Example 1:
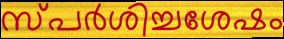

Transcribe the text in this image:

സ്പർശിച്ചശേഷം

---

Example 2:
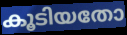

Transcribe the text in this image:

കൂടിയതോ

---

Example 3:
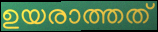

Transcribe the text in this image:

ഉയരാത്തത്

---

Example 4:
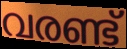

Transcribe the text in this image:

വരണ്ട്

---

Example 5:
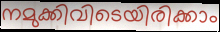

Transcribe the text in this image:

നമുക്കിവിടെയിരിക്കാം